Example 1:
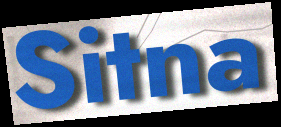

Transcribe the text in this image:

Sitna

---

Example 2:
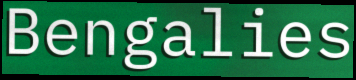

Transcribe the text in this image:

Bengalies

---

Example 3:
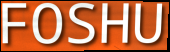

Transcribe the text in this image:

FOSHU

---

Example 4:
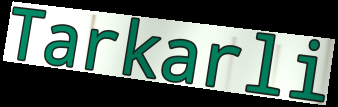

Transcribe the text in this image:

Tarkarli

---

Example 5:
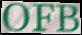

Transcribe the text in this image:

OFB